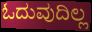
ಓದುವುದಿಲ್ಲ